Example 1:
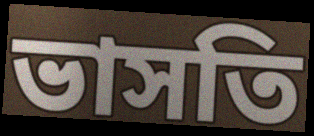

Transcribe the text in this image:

ভাসতি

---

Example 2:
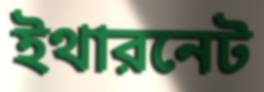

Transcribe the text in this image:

ইথারনেট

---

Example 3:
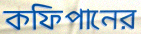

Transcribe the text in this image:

কফিপানের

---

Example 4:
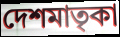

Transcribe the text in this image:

দেশমাতৃকা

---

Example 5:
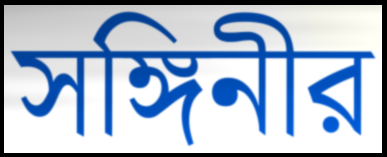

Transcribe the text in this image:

সঙ্গিনীর